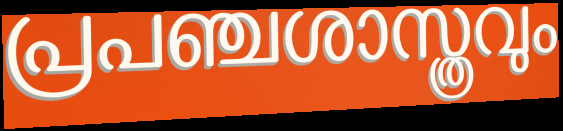
പ്രപഞ്ചശാസ്ത്രവും